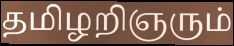
தமிழறிஞரும்